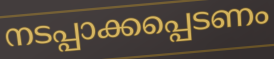
നടപ്പാക്കപ്പെടണം